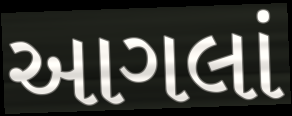
આગલાં